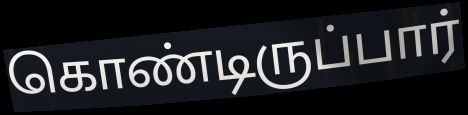
கொண்டிருப்பார்